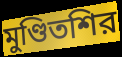
মুণ্ডিতশির